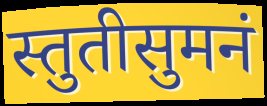
स्तुतीसुमनं